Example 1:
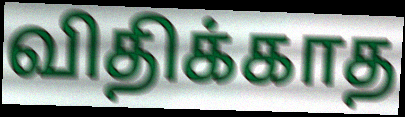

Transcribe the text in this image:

விதிக்காத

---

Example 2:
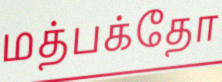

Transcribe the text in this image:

மத்பக்தோ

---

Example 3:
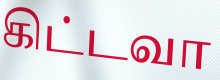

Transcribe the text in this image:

கிட்டவா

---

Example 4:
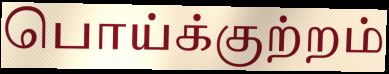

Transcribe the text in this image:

பொய்க்குற்றம்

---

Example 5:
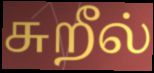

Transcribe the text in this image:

சுறீல்